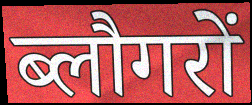
ब्लौगरों